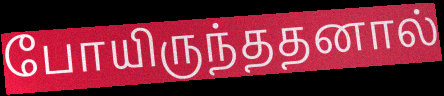
போயிருந்ததனால்